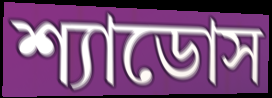
শ্যাডোস